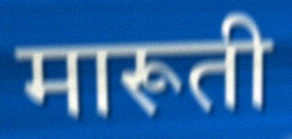
मारूती